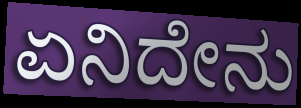
ಏನಿದೇನು